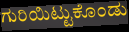
ಗುರಿಯಿಟ್ಟುಕೊಂಡು